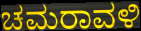
ಚಮರಾವಳಿ